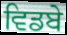
ਵਿਡਬੇ